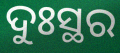
ଦୁଃସ୍ଥର